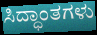
ಸಿದ್ಧಾಂತಗಳು